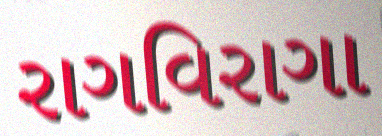
રાગવિરાગા